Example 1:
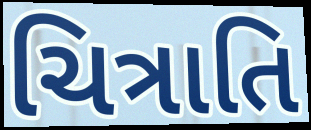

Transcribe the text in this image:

ચિત્રાતિ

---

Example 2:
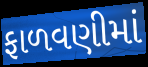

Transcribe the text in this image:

ફાળવણીમાં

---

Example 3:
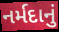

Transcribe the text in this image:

નર્મદાનું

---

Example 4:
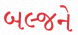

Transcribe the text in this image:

બલ્જને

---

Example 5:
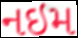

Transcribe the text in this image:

નઇમ